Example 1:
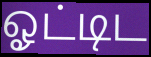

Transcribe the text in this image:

ஓட்டிட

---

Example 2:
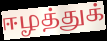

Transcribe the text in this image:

ஈழத்துக்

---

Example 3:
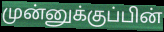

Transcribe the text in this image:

முன்னுக்குப்பின்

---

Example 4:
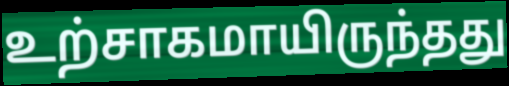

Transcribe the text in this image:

உற்சாகமாயிருந்தது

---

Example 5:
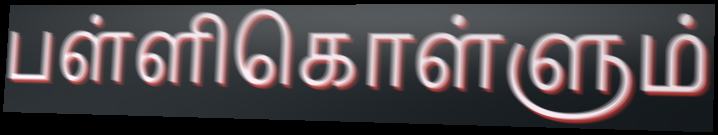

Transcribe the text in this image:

பள்ளிகொள்ளும்